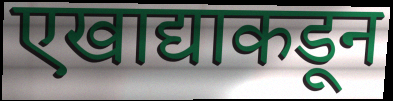
एखाद्याकडून